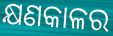
କ୍ଷଣକାଳର